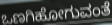
ಒಣಗಿಹೋಗುವಂತೆ